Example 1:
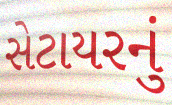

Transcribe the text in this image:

સેટાયરનું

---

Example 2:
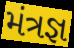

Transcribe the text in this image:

મંત્રજ્ઞ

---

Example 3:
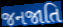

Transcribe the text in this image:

જનજાતિ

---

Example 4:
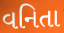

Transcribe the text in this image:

વનિતા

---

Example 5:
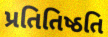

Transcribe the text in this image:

પ્રતિતિષ્ઠતિ